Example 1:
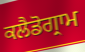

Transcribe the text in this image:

ਕਲੈਡੋਗ੍ਰਾਮ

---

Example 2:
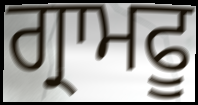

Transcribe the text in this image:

ਗ੍ਰਾਮਫੂ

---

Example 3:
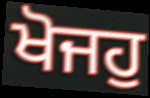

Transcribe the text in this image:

ਖੋਜਹੁ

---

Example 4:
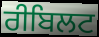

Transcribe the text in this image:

ਰੀਬਿਲਟ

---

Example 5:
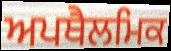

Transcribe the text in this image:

ਅਪਥੈਲਮਿਕ